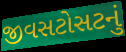
જીવસટોસટનું